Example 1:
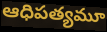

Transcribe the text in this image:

ఆధిపత్యమూ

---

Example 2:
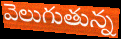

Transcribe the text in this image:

వెలుగుతున్న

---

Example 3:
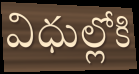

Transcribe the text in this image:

విధుల్లోకి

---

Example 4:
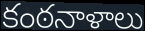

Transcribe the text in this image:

కంఠనాళాలు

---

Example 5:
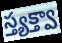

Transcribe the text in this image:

స్త్యక్త్వా